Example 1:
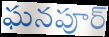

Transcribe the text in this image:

ఘనపూర్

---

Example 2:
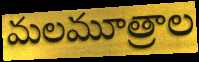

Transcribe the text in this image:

మలమూత్రాల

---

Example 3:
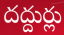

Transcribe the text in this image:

దద్దుర్లు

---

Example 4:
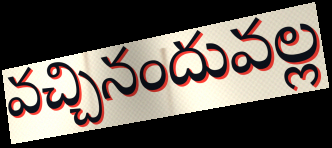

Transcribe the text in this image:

వచ్చినందువల్ల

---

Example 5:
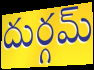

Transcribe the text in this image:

దుర్గమ్